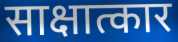
साक्षात्कार